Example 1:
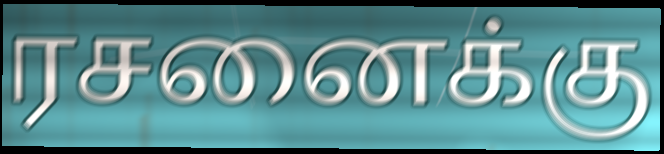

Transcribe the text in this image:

ரசனைக்கு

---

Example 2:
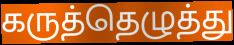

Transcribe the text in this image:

கருத்தெழுத்து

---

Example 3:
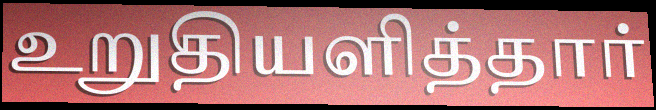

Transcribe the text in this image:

உறுதியளித்தார்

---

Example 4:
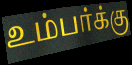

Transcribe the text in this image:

உம்பர்க்கு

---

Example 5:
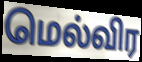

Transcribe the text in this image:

மெல்விர